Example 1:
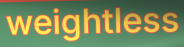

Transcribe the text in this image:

weightless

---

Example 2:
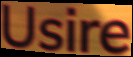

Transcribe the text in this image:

Usire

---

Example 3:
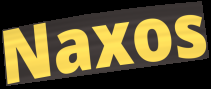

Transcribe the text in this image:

Naxos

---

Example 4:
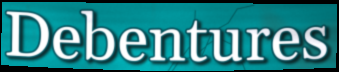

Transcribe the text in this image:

Debentures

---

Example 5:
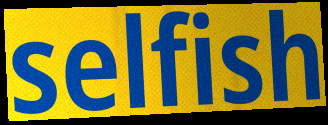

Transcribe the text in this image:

selfish